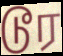
டூர